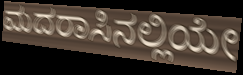
ಮದರಾಸಿನಲ್ಲಿಯೇ